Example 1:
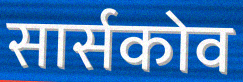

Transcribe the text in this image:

सार्सकोव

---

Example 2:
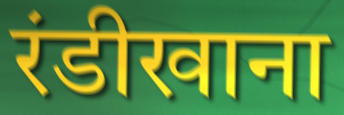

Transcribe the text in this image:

रंडीखाना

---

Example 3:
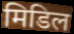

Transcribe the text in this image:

मिडिल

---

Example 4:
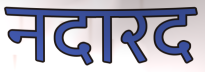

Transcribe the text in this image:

नदारद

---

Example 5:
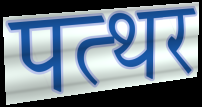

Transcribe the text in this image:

पत्थर